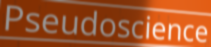
Pseudoscience